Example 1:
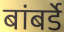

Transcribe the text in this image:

बांबर्डे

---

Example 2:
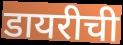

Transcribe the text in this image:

डायरीची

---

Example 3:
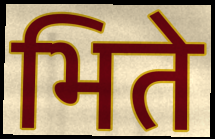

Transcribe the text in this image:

भिते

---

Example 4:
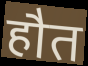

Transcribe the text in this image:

हौत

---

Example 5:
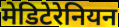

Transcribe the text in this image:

मेडिटेरेनियन